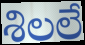
శిలలే